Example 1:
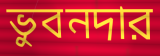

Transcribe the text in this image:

ভুবনদার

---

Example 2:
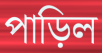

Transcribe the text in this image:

পাড়িল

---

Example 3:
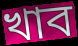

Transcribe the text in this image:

খাব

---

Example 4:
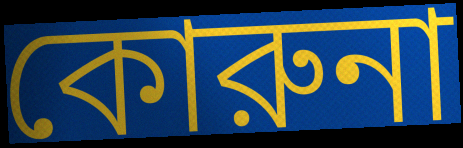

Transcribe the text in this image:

কোরুনা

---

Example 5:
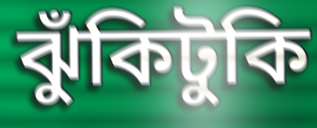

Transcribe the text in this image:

ঝুঁকিটুকি